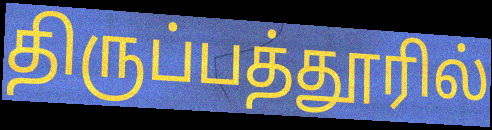
திருப்பத்தூரில்